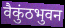
वैकुंठभुवन